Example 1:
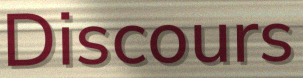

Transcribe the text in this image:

Discours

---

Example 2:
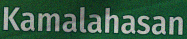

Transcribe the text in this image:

Kamalahasan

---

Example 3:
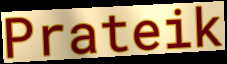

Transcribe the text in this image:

Prateik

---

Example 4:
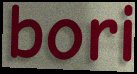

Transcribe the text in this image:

bori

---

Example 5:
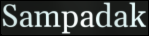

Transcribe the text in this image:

Sampadak